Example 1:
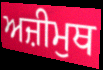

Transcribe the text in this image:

ਅਜ਼ੀਮੁਥ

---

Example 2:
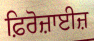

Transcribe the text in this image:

ਫ਼ਿਰੋਜ਼ਾਈਜ਼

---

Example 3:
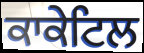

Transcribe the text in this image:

ਕਾਕੇਟਿਲ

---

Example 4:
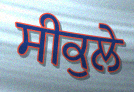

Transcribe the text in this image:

ਸੀਕੁਲੇ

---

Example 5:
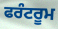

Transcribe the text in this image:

ਫਰੰਟਰੂਮ